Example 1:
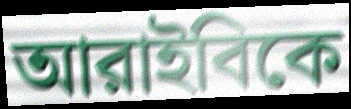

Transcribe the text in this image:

আরাইবিকে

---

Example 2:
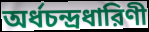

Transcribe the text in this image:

অর্ধচন্দ্রধারিণী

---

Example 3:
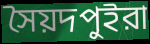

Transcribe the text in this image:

সৈয়দপুইরা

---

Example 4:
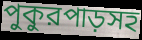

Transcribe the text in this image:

পুকুরপাড়সহ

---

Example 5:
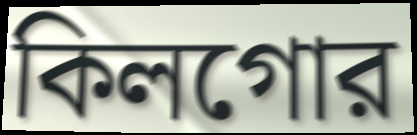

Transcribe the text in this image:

কিলগোর